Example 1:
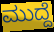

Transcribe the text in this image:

ಮುದ್ದೆ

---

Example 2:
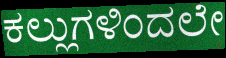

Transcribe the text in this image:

ಕಲ್ಲುಗಳಿಂದಲೇ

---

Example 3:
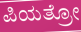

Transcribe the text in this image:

ಪಿಯತ್ರೋ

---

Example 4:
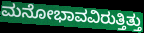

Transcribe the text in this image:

ಮನೋಭಾವವಿರುತ್ತಿತ್ತು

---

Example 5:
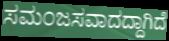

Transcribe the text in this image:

ಸಮಂಜಸವಾದದ್ದಾಗಿದೆ